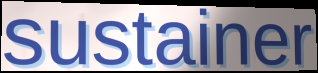
sustainer